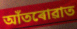
আঁতৰোৱাত